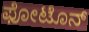
ಫೋಟೊನ್